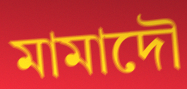
মামাদৌ